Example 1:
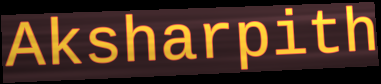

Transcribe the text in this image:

Aksharpith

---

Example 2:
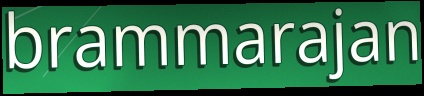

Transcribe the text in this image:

brammarajan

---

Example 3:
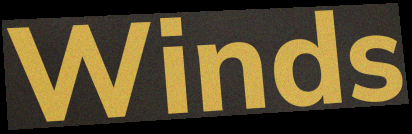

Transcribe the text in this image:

Winds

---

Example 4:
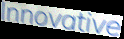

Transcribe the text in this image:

Innovative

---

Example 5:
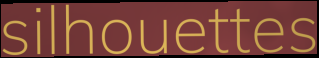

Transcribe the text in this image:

silhouettes